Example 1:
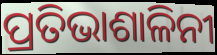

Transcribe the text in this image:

ପ୍ରତିଭାଶାଳିନୀ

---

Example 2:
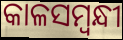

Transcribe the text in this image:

କାଳସମ୍ଵନ୍ଧୀ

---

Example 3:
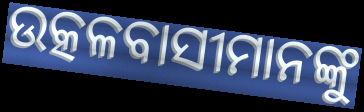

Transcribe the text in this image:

ଉତ୍କଳବାସୀମାନଙ୍କୁ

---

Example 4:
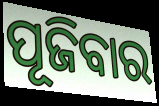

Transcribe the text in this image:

ପୂଜିବାର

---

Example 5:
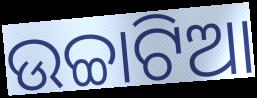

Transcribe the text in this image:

ଉଚ୍ଚାଟିଆ